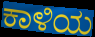
ಕಾಳಿಯ